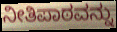
ನೀತಿಪಾಠವನ್ನು